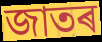
জাতৰ